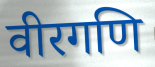
वीरगणि